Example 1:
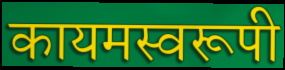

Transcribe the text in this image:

कायमस्वरूपी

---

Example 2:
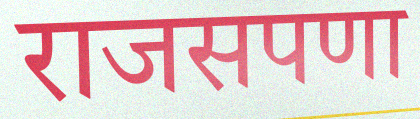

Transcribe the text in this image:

राजसपणा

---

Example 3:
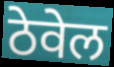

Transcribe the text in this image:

ठेवेल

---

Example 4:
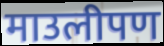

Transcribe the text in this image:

माउलीपण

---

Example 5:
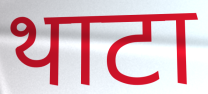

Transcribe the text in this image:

थाटा